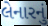
લેનારનું